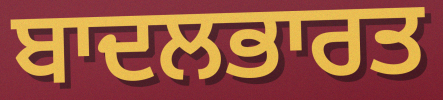
ਬਾਦਲਭਾਰਤ